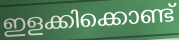
ഇളക്കിക്കൊണ്ട്